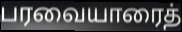
பரவையாரைத்